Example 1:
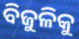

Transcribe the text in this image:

ବିଜୁଳିକୁ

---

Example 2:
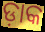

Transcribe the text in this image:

ଡ଼ାକ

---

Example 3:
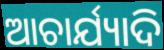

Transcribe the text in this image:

ଆଚାର୍ଯ୍ୟାଦି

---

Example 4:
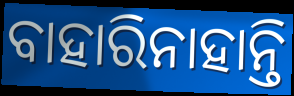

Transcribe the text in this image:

ବାହାରିନାହାନ୍ତି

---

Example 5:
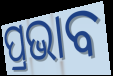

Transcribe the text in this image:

ପ୍ରଭାବ